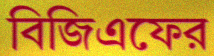
বিজিএফের